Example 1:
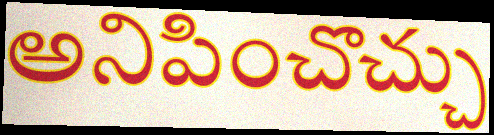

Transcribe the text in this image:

అనిపించొచ్చు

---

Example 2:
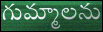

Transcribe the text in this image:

గుమ్మాలను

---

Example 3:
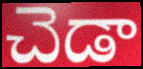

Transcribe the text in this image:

చెడా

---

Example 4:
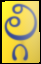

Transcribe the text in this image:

ల్గి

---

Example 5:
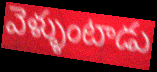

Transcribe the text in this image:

వెళ్ళుంటాడు